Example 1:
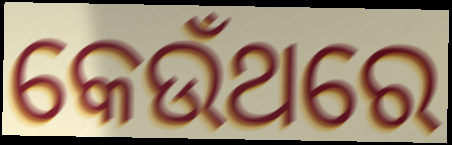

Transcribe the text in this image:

କେଉଁଥରେ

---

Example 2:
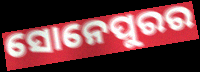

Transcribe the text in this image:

ସୋନେପୁରର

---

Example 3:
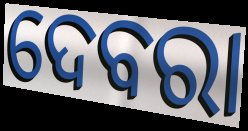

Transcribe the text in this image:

ଦେବରା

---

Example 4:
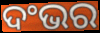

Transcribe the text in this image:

ଦଂଭର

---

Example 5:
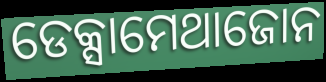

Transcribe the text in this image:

ଡେକ୍ସାମେଥାଜୋନ